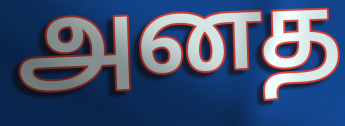
அனத